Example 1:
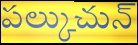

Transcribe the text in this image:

పల్కుచున్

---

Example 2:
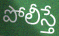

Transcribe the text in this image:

పోలీస్తే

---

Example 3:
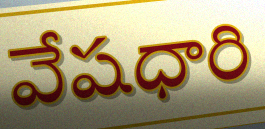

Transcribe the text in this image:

వేషధారి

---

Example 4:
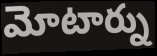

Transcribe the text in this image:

మోటార్ను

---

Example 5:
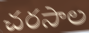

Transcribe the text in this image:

చరసాల